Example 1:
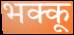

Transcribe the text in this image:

भक्कू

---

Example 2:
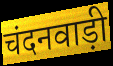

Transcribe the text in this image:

चंदनवाड़ी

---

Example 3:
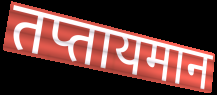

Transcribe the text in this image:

तप्तायमान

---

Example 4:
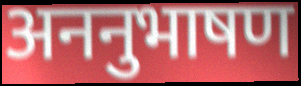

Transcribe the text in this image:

अननुभाषण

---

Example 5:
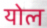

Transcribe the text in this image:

योल